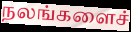
நலங்களைச்